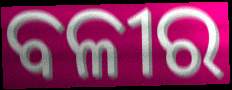
ବଳୀର